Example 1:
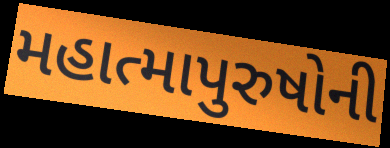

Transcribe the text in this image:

મહાત્માપુરુષોની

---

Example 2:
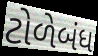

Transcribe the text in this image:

ટોળેબંધ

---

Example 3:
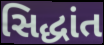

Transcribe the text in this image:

સિદ્ધાંત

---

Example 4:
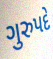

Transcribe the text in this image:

ગુરુપદે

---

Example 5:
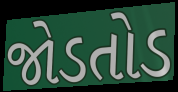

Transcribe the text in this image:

જોડતોડ